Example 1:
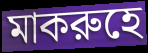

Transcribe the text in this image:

মাকরুহে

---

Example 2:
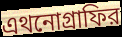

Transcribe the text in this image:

এথনোগ্রাফির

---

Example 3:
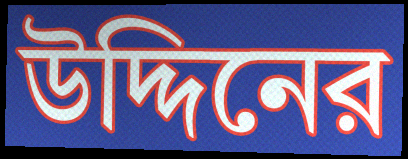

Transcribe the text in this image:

উদ্দিনের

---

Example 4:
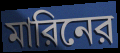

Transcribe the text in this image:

মারিনের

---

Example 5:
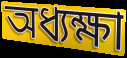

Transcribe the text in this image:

অধ্যক্ষা